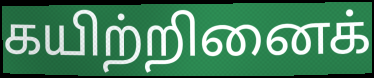
கயிற்றினைக்